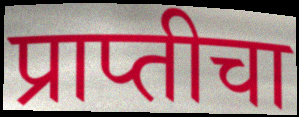
प्राप्तीचा